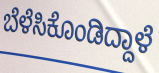
ಬೆಳೆಸಿಕೊಂಡಿದ್ದಾಳೆ